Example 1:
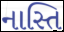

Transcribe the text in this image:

નાસ્તિ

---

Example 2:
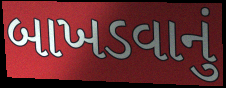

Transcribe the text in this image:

બાખડવાનું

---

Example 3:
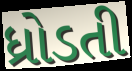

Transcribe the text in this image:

ધ્રોડતી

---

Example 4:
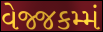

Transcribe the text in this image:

વેજ્જકમ્મં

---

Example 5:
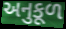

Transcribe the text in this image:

અનુકૂળ